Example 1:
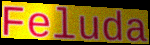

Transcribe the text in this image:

Feluda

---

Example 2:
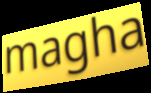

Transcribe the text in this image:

magha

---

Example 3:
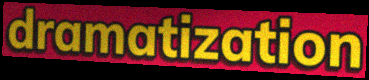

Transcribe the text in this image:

dramatization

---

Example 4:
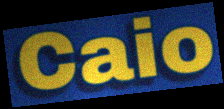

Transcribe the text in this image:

Caio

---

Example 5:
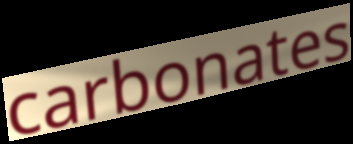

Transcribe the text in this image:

carbonates